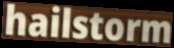
hailstorm